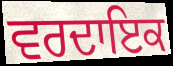
ਵਰਦਾਇਕ